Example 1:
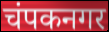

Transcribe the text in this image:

चंपकनगर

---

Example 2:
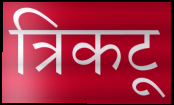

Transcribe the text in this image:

त्रिकटू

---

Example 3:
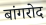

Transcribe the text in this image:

बांगरोद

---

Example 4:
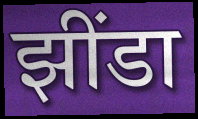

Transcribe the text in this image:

झींडा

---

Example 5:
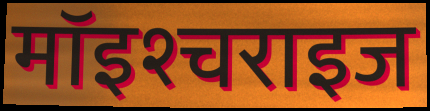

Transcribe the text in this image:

मॉइश्चराइज